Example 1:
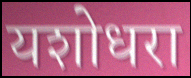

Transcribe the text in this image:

यशोधरा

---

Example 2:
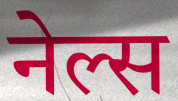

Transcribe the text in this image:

नेल्स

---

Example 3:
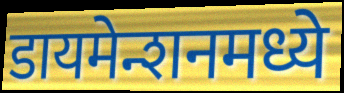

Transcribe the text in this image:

डायमेन्शनमध्ये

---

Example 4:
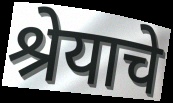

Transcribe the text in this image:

श्रेयाचे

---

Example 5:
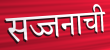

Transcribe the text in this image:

सज्जनाची